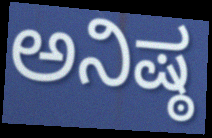
ಅನಿಷ್ಠ